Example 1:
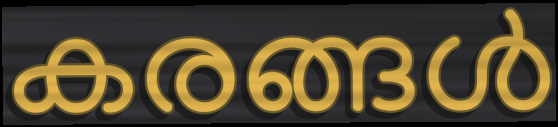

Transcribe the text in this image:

കരങ്ങൾ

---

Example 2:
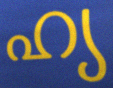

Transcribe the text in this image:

ഹ്യ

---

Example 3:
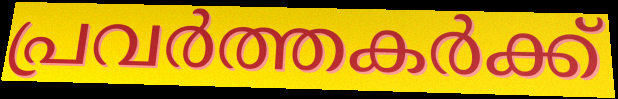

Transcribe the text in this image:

പ്രവർത്തകർക്ക്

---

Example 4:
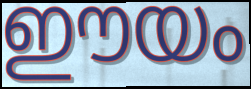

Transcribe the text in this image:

ഈയം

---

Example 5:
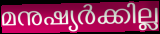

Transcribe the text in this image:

മനുഷ്യർക്കില്ല